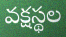
వక్షస్థల